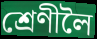
শ্ৰেণীলৈ